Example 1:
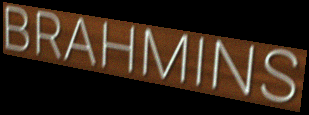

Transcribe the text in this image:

BRAHMINS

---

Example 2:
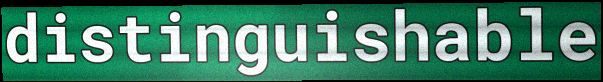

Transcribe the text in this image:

distinguishable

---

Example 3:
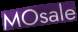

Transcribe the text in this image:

MOsale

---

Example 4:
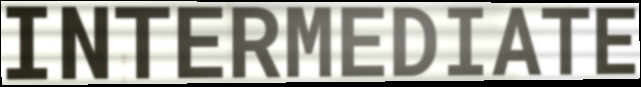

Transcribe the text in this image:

INTERMEDIATE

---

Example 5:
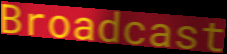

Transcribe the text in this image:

Broadcast